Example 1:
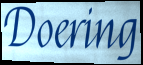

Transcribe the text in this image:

Doering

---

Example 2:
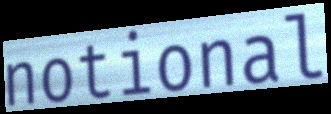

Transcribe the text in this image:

notional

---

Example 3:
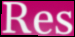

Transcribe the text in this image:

Res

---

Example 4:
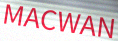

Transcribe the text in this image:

MACWAN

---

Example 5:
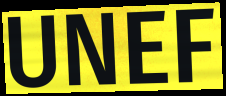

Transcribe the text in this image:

UNEF